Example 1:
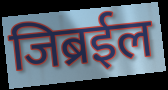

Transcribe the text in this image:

जिब्रईल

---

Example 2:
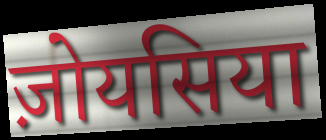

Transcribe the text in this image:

ज़ोयसिया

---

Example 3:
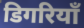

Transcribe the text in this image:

डिगरियाँ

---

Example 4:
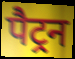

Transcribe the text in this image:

पैट्रन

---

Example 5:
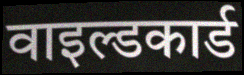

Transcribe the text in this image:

वाइल्डकार्ड